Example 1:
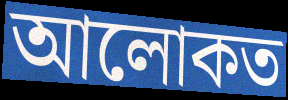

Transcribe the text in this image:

আলোকত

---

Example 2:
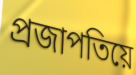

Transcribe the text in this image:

প্ৰজাপতিয়ে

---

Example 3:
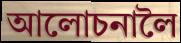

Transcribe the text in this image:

আলোচনালৈ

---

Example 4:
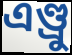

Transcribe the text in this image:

এণ্ড্ৰু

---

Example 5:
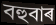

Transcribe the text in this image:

বহুবাৰ